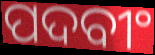
ପଦବୀଂ